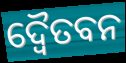
ଦ୍ବୈତବନ